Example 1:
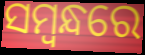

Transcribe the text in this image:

ସମ୍ୱନ୍ଧରେ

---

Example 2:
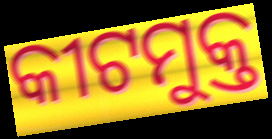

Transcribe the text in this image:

କୀଟମୁକ୍ତ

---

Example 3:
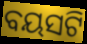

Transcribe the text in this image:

ବୟସଟି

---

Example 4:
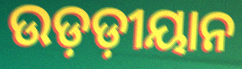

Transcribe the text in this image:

ଉଡ଼ଡ଼ୀୟାନ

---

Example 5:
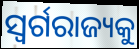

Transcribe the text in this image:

ସ୍ଵର୍ଗରାଜ୍ୟକୁ